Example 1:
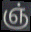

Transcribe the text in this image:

ஞ்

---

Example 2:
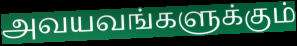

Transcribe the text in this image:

அவயவங்களுக்கும்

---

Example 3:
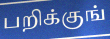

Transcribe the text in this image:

பறிக்குங்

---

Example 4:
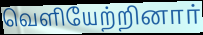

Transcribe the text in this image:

வெளியேற்றினார்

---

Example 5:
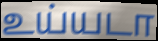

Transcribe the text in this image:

உய்யடா